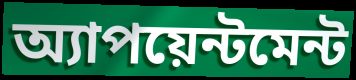
অ্যাপয়েন্টমেন্ট